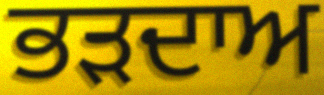
ਭੜਦਾਅ